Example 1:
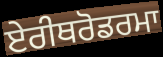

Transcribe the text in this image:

ਏਰੀਥਰੋਡਰਮਾ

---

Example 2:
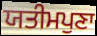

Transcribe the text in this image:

ਯਤੀਮਪੁਣਾ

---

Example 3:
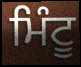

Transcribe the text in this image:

ਮਿੰਟੂ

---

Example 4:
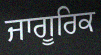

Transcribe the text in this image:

ਜਾਗੂਰਿਕ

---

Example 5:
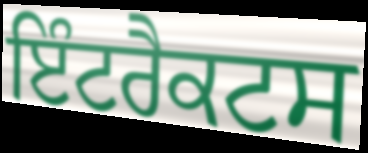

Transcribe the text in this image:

ਇੰਟਰੈਕਟਸ